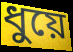
ধুয়ে